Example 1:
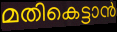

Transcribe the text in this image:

മതികെട്ടാൻ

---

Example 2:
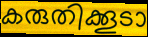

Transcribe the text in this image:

കരുതിക്കൂടാ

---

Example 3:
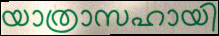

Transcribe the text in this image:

യാത്രാസഹായി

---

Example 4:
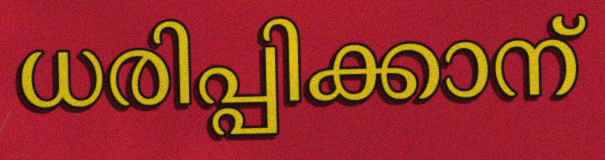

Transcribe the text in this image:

ധരിപ്പിക്കാന്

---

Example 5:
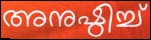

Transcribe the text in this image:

അനുഷ്ഠിച്ച്